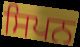
ਸਿਪਨ